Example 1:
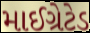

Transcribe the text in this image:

માઈગ્રેટેડ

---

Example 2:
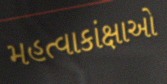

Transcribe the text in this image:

મહત્વાકાંક્ષાઓ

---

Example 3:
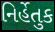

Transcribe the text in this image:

નિર્હેતુક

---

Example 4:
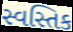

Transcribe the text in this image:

સ્વસ્તિક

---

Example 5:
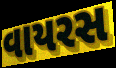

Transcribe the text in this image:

વાયરસ